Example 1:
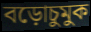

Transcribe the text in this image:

বড়োচুমুক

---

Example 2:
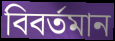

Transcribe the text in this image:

বিবর্তমান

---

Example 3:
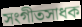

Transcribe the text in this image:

সংগীতসাধক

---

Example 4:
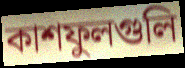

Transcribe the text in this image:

কাশফুলগুলি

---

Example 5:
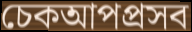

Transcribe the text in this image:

চেকআপপ্রসব